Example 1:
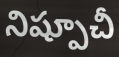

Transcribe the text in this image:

నిష్పూచీ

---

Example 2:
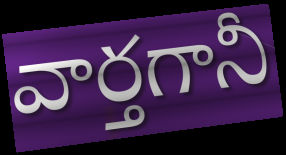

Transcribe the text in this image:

వార్తగానీ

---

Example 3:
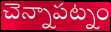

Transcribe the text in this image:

చెన్నాపట్నం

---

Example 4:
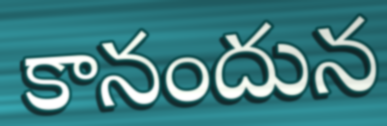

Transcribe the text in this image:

కానందున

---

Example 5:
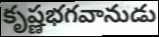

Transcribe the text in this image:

కృష్ణభగవానుడు